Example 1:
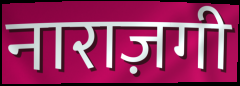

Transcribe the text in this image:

नाराज़गी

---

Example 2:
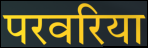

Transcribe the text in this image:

परवरिया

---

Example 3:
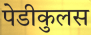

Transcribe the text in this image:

पेडीकुलस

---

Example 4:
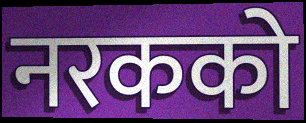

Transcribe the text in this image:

नरकको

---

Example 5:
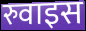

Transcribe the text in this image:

रुवाइस